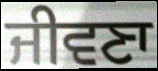
ਜੀਵਣਾ